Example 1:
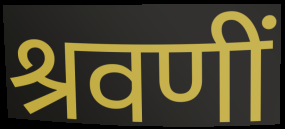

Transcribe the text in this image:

श्रवणीं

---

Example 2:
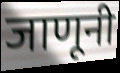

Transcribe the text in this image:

जाणूनी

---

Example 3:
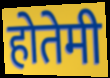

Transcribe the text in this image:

होतेमी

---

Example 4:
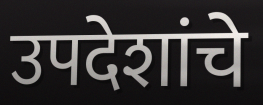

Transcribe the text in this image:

उपदेशांचे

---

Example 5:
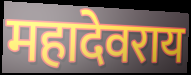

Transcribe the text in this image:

महादेवराय